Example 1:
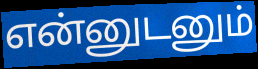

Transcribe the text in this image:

என்னுடனும்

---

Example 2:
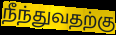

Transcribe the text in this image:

நீந்துவதற்கு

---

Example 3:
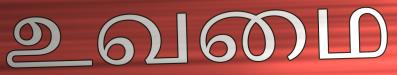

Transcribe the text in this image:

உவமை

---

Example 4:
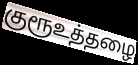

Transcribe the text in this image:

குரூஉத்தழை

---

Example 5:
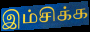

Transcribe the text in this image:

இம்சிக்க